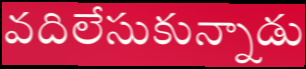
వదిలేసుకున్నాడు